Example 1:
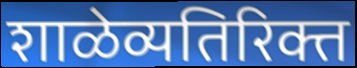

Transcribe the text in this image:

शाळेव्यतिरिक्त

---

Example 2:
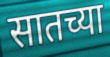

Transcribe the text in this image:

सातच्या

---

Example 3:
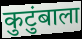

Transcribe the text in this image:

कुटुंबाला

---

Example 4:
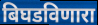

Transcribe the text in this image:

बिघडविणारा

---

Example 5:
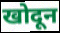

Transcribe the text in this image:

खोदून